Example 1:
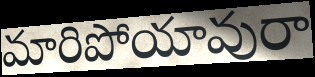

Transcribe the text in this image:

మారిపోయావురా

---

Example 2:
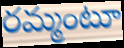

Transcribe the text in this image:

రమ్మంటూ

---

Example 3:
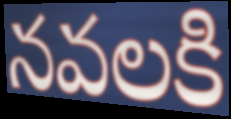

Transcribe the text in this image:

నవలకి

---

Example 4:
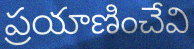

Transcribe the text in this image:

ప్రయాణించేవి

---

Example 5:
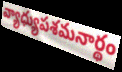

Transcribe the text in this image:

వ్యాధ్యుపశమనార్థం